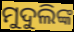
ମୁଦୁଲିଙ୍କ